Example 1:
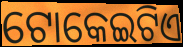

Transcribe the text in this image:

ଟୋକେଇଟିଏ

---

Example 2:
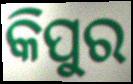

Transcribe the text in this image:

କିପୁର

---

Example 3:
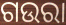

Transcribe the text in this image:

ଗଉରା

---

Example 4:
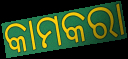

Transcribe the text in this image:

କାମକରା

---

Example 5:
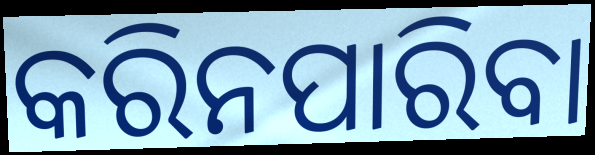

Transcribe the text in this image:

କରିନପାରିବା